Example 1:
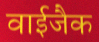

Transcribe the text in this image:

वाईजैक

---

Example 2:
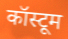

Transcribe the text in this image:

कॉस्टूम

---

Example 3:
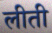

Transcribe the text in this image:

लीती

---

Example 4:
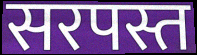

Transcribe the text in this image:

सरपस्त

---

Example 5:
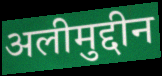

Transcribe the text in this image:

अलीमुद्दीन